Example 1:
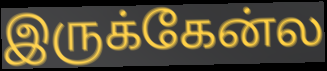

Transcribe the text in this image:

இருக்கேன்ல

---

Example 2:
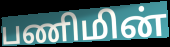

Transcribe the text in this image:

பணிமின்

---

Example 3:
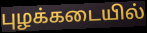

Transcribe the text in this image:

புழக்கடையில்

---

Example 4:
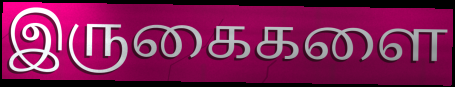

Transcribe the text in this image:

இருகைகளை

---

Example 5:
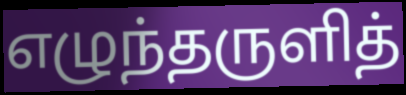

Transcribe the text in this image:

எழுந்தருளித்